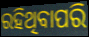
ରହିଥିବାପରି